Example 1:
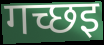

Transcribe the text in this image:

गच्छइ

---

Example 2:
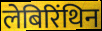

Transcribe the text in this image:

लेबिरिंथिन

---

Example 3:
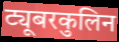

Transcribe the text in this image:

ट्यूबरकुलिन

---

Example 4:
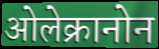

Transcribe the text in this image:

ओलेक्रानोन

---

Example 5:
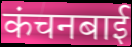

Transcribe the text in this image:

कंचनबाई